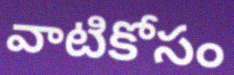
వాటికోసం